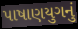
પાષાણયુગનું